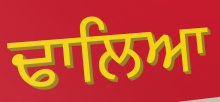
ਢਾਲਿਆ